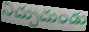
నిచ్చుచుండు